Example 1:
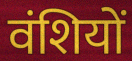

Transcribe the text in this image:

वंशियों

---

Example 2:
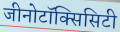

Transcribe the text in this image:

जीनोटॉक्सिसिटी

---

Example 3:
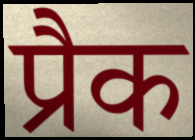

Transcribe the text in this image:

प्रैक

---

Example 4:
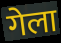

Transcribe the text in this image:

गेला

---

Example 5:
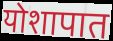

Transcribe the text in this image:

योशापात